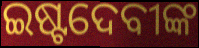
ଇଷ୍ଟଦେବୀଙ୍କ